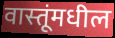
वास्तूंमधील